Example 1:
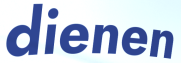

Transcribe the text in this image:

dienen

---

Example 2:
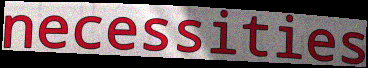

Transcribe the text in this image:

necessities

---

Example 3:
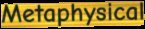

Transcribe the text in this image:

Metaphysical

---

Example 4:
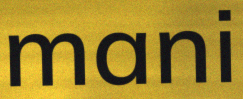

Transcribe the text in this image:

mani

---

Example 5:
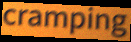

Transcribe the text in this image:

cramping